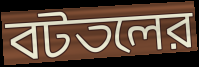
বটতলের